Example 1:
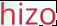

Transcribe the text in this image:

hizo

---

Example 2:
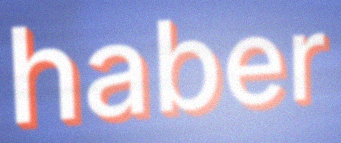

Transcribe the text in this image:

haber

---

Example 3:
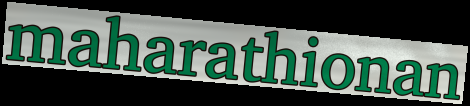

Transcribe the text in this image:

maharathionan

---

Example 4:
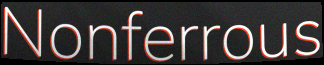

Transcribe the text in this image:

Nonferrous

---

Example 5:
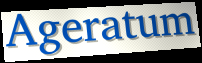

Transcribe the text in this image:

Ageratum